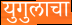
युगुलाचा